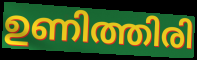
ഉണിത്തിരി